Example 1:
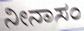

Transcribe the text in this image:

ನೀನಾಸಂ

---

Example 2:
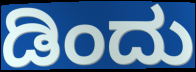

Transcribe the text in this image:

ಡಿಂದು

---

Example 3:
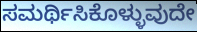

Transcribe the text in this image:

ಸಮರ್ಥಿಸಿಕೊಳ್ಳುವುದೇ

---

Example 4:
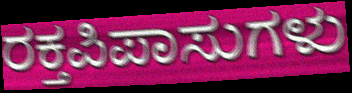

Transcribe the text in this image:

ರಕ್ತಪಿಪಾಸುಗಳು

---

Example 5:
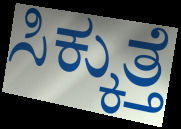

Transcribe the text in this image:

ಸಿಕ್ಕುತ್ತೆ